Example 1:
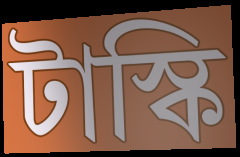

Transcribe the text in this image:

টাস্কি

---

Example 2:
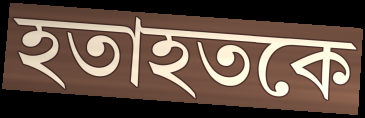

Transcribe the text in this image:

হতাহতকে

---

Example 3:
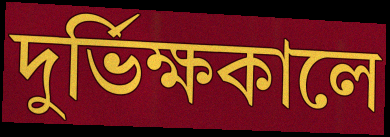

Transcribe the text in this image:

দুর্ভিক্ষকালে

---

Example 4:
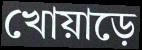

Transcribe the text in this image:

খোয়াড়ে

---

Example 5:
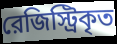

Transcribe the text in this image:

রেজিস্ট্রিকৃত